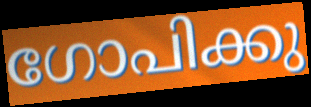
ഗോപിക്കു